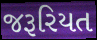
જરૂરિયત